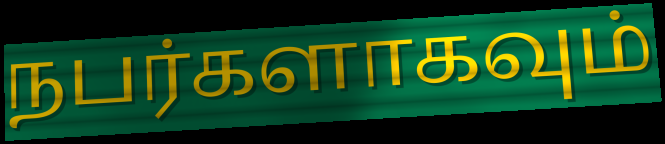
நபர்களாகவும்